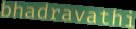
bhadravathi